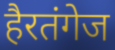
हैरतंगेज